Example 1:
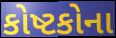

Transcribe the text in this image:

કોષ્ટકોના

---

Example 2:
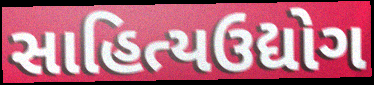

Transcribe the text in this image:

સાહિત્યઉદ્યોગ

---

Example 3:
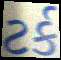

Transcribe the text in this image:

ટર્ક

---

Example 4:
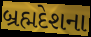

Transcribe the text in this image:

બ્રહ્મદેશના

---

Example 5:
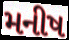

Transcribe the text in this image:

મનીષ